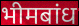
भीमबांध